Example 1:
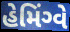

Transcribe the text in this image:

હેમિંગ્વે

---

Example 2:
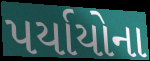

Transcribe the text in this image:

પર્યાયોના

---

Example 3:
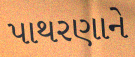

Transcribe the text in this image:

પાથરણાને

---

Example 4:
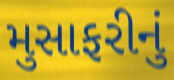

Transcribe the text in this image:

મુસાફરીનું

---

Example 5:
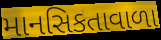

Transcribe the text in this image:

માનસિકતાવાળા